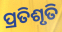
ପ୍ରତିଶୃତି